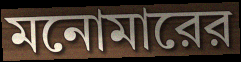
মনোমারের